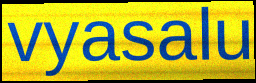
vyasalu